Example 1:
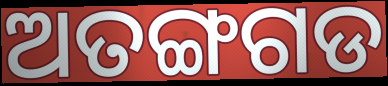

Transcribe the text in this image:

ଅତଙ୍ଗଗଡ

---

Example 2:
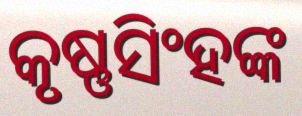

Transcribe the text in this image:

କୃଷ୍ଣସିଂହଙ୍କ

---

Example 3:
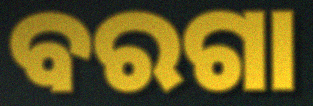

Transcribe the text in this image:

ବରଗା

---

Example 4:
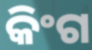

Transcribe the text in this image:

କିଂଗ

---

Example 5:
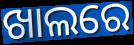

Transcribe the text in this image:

ଖାଲରେ